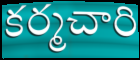
కర్మచారి